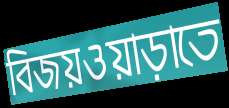
বিজয়ওয়াড়াতে